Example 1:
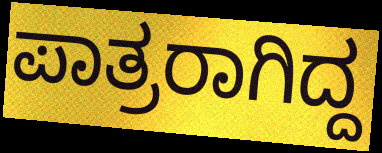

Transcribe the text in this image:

ಪಾತ್ರರಾಗಿದ್ದ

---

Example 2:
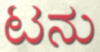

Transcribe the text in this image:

ಟನು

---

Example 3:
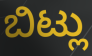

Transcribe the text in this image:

ಬಿಟ್ಲು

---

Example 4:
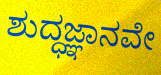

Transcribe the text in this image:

ಶುದ್ಧಜ್ಞಾನವೇ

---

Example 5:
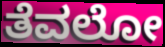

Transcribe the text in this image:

ತೆವಲೋ